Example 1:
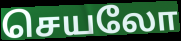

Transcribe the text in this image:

செயலோ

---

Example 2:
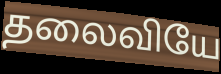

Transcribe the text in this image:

தலைவியே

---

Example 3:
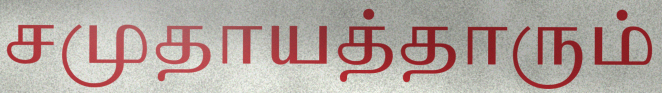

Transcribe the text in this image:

சமுதாயத்தாரும்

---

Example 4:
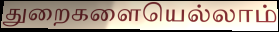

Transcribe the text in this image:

துறைகளையெல்லாம்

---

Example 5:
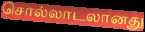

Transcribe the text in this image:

சொல்லாடலானது